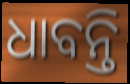
ଧାବନ୍ତି